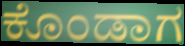
ಕೊಂಡಾಗ